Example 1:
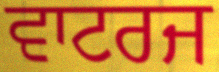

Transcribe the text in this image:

ਵਾਟਰਜ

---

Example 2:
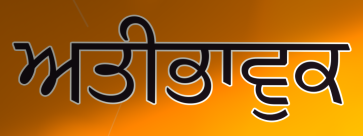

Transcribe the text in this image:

ਅਤੀਭਾਵੁਕ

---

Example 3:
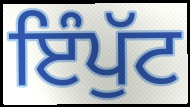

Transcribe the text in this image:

ਇੰਪੁੱਟ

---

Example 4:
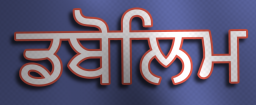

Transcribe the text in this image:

ਡਬੋਲਿਮ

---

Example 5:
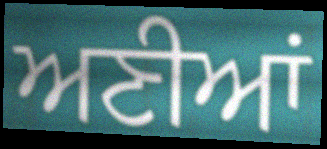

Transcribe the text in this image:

ਅਣੀਆਂ